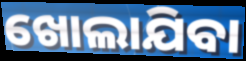
ଖୋଲାଯିବା